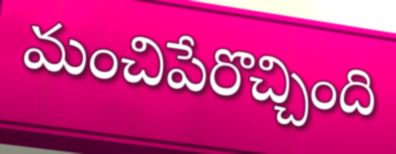
మంచిపేరొచ్చింది